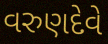
વરુણદેવે